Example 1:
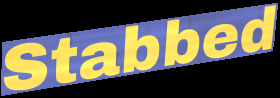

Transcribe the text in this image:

Stabbed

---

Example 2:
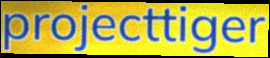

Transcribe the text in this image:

projecttiger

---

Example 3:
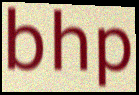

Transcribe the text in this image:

bhp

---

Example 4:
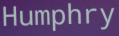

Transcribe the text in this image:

Humphry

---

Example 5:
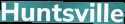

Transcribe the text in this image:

Huntsville